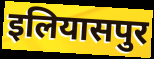
इलियासपुर